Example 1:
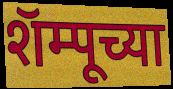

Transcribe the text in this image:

शॅम्पूच्या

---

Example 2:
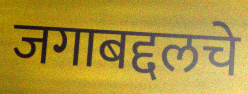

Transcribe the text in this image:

जगाबद्दलचे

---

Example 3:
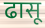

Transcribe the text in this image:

ढासू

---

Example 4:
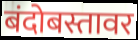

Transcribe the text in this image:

बंदोबस्तावर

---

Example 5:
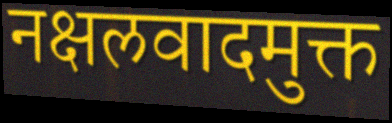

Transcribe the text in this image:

नक्षलवादमुक्त